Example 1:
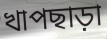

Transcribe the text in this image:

খাপছাড়া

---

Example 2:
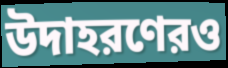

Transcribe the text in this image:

উদাহরণেরও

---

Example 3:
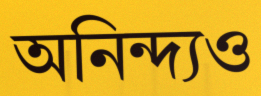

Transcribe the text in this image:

অনিন্দ্যও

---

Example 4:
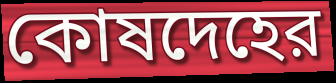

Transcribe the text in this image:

কোষদেহের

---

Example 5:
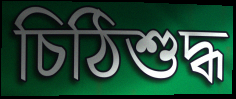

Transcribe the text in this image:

চিঠিশুদ্ধ